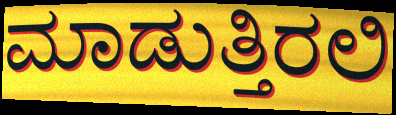
ಮಾಡುತ್ತಿರಲಿ